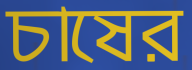
চাষের